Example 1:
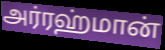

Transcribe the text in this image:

அர்ரஹ்மான்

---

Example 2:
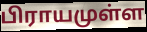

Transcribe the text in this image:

பிராயமுள்ள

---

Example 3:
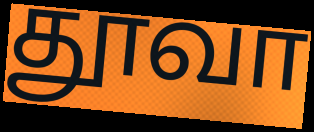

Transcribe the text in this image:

தூவா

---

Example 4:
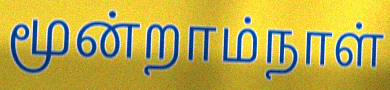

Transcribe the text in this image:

மூன்றாம்நாள்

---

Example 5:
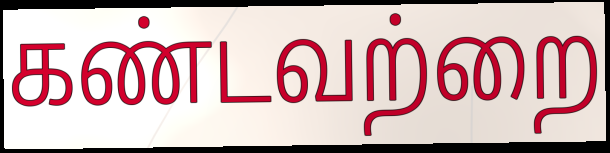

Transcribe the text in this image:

கண்டவற்றை